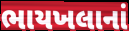
ભાયખલાનાં